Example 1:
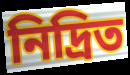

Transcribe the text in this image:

নিদ্রিত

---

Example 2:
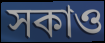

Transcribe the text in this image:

সকাও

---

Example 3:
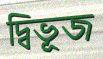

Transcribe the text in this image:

দ্বিভূজ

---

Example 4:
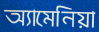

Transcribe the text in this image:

অ্যামেনিয়া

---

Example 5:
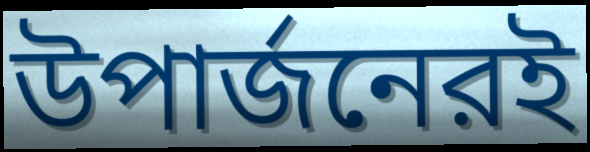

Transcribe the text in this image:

উপার্জনেরই